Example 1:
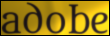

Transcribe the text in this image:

adobe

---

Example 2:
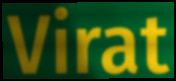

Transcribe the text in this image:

Virat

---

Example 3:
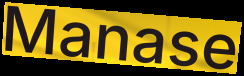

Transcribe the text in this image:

Manase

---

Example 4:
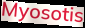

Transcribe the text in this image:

Myosotis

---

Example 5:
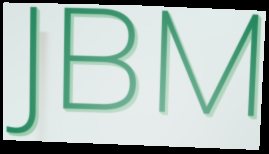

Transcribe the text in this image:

JBM